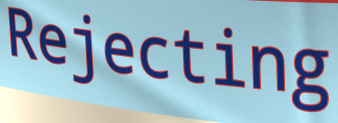
Rejecting